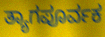
ತ್ಯಾಗಪೂರ್ವಕ